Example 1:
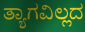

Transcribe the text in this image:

ತ್ಯಾಗವಿಲ್ಲದ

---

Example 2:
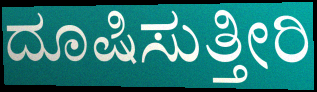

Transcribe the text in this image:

ದೂಷಿಸುತ್ತೀರಿ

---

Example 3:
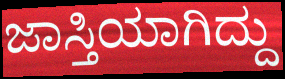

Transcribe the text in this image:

ಜಾಸ್ತಿಯಾಗಿದ್ದು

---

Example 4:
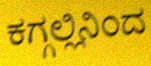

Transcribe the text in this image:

ಕಗ್ಗಲ್ಲಿನಿಂದ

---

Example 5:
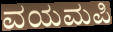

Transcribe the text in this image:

ವಯಮಪಿ